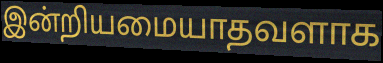
இன்றியமையாதவளாக